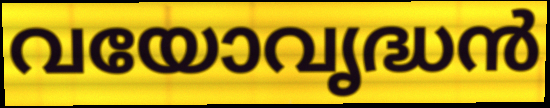
വയോവൃദ്ധൻ